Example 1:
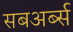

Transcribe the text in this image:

सबअर्ब्स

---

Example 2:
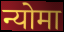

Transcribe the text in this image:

न्योमा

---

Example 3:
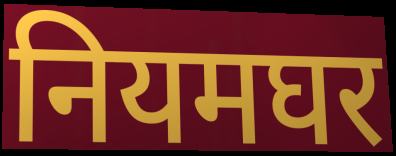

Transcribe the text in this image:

नियमघर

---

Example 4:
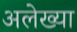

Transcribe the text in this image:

अलेख्या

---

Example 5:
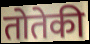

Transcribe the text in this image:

तोतेकी